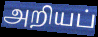
அறியப்